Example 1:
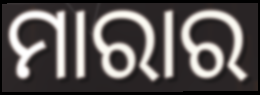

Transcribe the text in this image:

ମାରାର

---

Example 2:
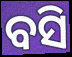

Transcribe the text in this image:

ବସି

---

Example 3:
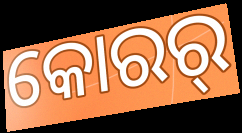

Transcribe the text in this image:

କୋରର୍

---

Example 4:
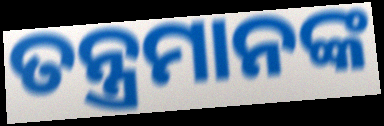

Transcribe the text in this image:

ତନ୍ତ୍ରମାନଙ୍କ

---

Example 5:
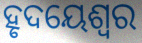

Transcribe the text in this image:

ହୃଦୟେଶ୍ୱର